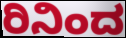
ರಿನಿಂದ